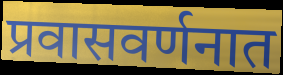
प्रवासवर्णनात